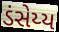
ડંસેય્ય